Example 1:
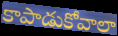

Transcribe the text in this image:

కాపాడుకోవాలా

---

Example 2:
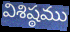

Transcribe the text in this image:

విశిష్ఠము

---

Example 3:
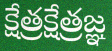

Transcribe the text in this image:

క్షేత్రక్షేత్రజ్ఞ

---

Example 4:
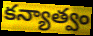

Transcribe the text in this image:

కన్యాత్వం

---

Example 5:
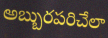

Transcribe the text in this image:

అబ్బురపరిచేలా